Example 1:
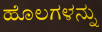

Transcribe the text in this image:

ಹೊಲಗಳನ್ನು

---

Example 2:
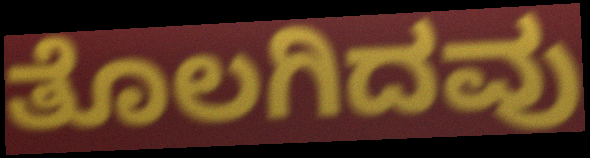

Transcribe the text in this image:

ತೊಲಗಿದವು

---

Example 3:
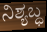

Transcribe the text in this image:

ನಿಶ್ಯಬ್ಧ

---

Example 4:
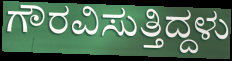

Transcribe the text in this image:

ಗೌರವಿಸುತ್ತಿದ್ದಳು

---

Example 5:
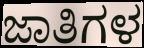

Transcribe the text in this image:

ಜಾತಿಗಳ